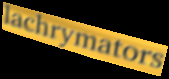
lachrymators